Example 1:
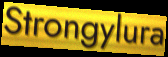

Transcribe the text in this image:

Strongylura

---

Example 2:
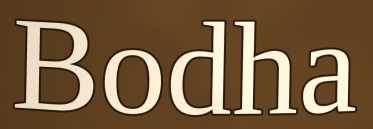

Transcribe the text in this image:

Bodha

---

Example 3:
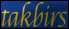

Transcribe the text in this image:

takbirs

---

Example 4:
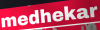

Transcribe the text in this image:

medhekar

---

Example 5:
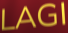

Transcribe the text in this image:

LAGI